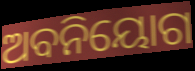
ଅବନିୟୋଗ